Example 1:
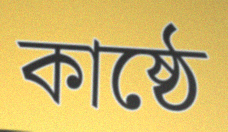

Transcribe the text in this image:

কাষ্ঠে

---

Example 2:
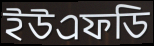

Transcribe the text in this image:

ইউএফডি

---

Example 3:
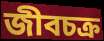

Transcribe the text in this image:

জীবচক্র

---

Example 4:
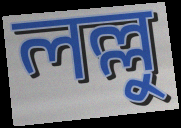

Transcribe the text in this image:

লল্লু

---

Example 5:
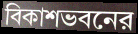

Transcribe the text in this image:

বিকাশভবনের